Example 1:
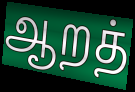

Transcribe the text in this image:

ஆறத்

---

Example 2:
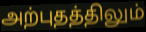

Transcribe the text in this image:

அற்புதத்திலும்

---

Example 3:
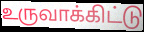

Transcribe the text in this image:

உருவாக்கிட்டு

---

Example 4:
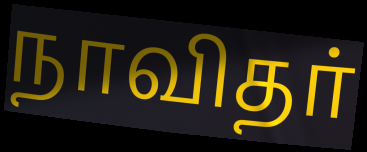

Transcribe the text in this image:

நாவிதர்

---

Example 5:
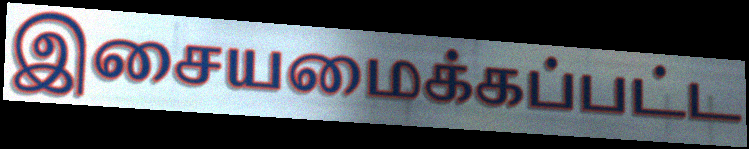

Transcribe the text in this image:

இசையமைக்கப்பட்ட